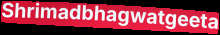
Shrimadbhagwatgeeta